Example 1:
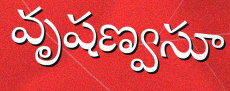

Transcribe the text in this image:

వృషణ్వసూ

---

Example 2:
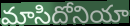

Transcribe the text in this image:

మాసిదోనియా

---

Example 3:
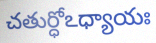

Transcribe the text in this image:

చతుర్ధోఽధ్యాయః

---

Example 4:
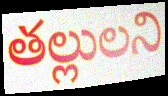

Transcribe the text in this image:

తల్లులని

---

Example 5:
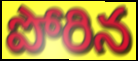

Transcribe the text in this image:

పోరిన